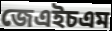
জেএইচএম